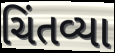
ચિંતવ્યા